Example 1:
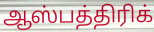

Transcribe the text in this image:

ஆஸ்பத்திரிக்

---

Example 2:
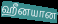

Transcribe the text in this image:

ஹீனயான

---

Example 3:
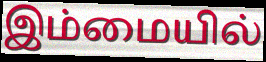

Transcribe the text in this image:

இம்மையில்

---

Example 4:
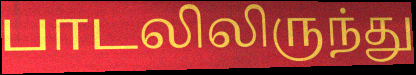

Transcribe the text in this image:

பாடலிலிருந்து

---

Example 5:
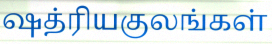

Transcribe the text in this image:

ஷத்ரியகுலங்கள்